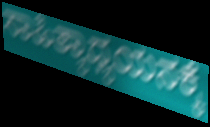
ಸಾಹಿತ್ಯಾಧ್ಯಯನಕ್ಕೆ